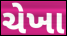
ચેખા